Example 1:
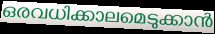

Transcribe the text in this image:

ഒരവധിക്കാലമെടുക്കാൻ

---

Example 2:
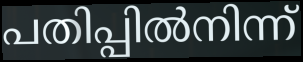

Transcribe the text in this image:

പതിപ്പിൽനിന്ന്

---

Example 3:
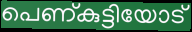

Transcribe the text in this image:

പെണ്കുട്ടിയോട്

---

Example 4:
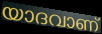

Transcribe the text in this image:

യാദവാണ്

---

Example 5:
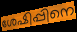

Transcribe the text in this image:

ശേഷിപ്പിനെ